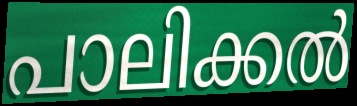
പാലിക്കൽ